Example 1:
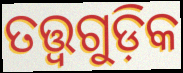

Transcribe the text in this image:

ତତ୍ତ୍ବଗୁଡ଼ିକ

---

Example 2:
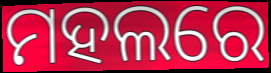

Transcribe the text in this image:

ମହଲରେ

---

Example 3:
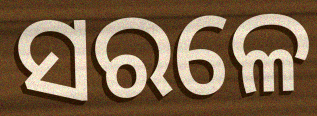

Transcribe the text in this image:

ସରଳେ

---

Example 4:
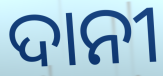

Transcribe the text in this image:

ଦାନୀ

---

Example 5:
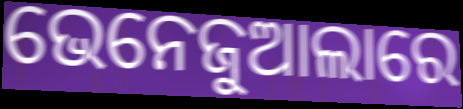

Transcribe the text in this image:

ଭେନେଜୁଆଲାରେ